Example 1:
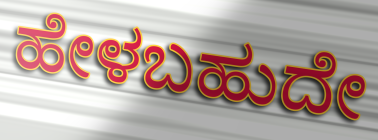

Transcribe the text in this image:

ಹೇಳಬಹುದೇ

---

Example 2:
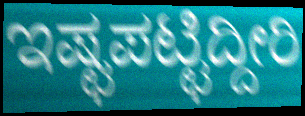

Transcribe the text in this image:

ಇಷ್ಟಪಟ್ಟಿದ್ದೀರಿ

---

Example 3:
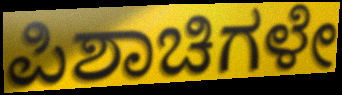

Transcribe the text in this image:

ಪಿಶಾಚಿಗಳೇ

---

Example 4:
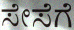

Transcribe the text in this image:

ಸೇಸೆಗೆ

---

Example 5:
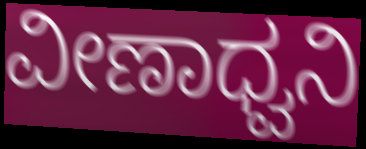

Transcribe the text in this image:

ವೀಣಾಧ್ವನಿ